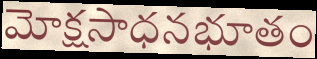
మోక్షసాధనభూతం